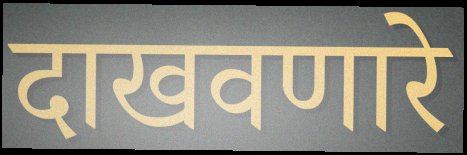
दाखवणारे